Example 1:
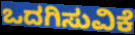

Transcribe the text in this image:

ಒದಗಿಸುವಿಕೆ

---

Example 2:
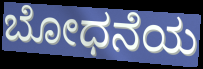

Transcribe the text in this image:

ಬೋಧನೆಯ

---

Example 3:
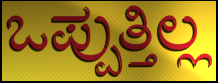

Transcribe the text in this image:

ಒಪ್ಪುತ್ತಿಲ್ಲ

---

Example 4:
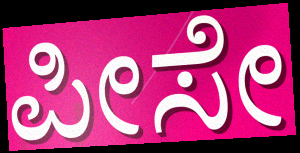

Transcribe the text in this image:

ಪೀಸೇ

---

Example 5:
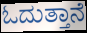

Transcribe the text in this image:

ಓದುತ್ತಾನೆ